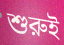
শুরুই